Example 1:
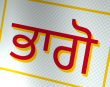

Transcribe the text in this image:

ਭਾਗੋ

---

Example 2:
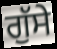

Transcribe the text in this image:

ਗੁੱਸੇ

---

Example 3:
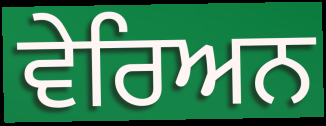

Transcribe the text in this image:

ਵੇਰਿਅਨ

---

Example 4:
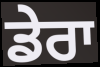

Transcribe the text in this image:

ਡੇਰਾ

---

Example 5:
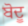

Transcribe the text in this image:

ਬੋਦੂ